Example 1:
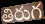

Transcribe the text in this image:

తిరుగ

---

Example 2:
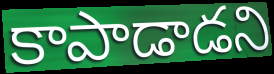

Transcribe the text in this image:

కాపాడాడని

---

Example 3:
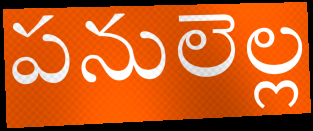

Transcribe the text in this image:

పనులెల్ల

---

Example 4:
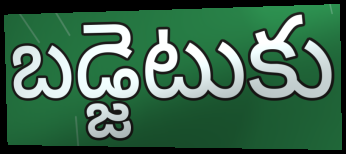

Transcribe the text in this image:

బడ్జెటుకు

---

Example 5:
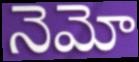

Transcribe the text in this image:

నెమో